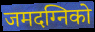
जमदग्निको